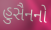
હુસૈનનો